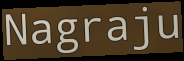
Nagraju